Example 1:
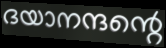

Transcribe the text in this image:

ദയാനന്ദന്റെ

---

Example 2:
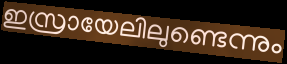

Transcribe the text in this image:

ഇസ്രായേലിലുണ്ടെന്നും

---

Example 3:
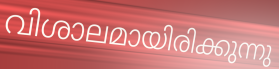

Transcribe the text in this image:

വിശാലമായിരിക്കുന്നു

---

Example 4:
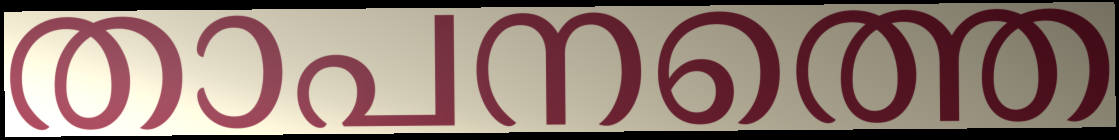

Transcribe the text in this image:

താപനത്തെ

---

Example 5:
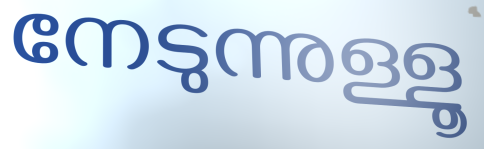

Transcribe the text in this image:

നേടുന്നുള്ളൂ